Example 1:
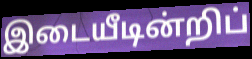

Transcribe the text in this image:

இடையீடின்றிப்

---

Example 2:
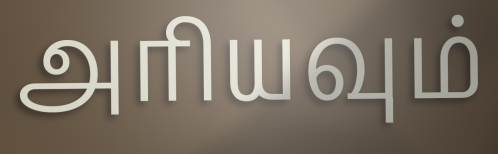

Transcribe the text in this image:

அரியவும்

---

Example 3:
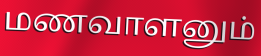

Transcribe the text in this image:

மணவாளனும்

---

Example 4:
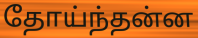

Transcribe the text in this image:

தோய்ந்தன்ன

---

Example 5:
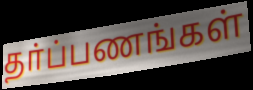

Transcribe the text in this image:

தர்ப்பணங்கள்